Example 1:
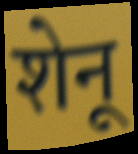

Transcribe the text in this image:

शेनू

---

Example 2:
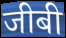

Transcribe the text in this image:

जीबी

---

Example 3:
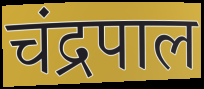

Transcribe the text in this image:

चंद्रपाल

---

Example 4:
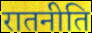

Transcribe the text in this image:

रातनीति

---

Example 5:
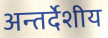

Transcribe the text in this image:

अन्तर्देशीय